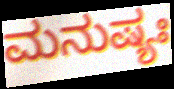
ಮನುಷ್ಯಃ